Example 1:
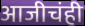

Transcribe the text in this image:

आजीचंही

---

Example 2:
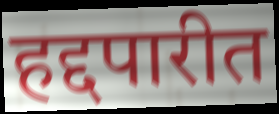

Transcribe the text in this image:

हद्दपारीत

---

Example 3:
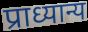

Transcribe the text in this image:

प्राध्यान्य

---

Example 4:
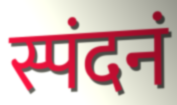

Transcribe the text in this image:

स्पंदनं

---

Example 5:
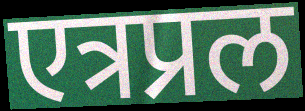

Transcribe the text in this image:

एत्रप्रल